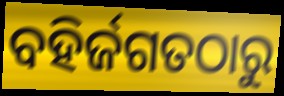
ବହିର୍ଜଗତଠାରୁ